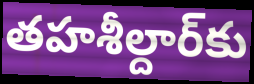
తహశీల్దార్‌కు